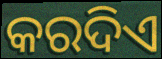
କରଦିଏ